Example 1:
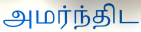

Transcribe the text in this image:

அமர்ந்திட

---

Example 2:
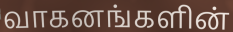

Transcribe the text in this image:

வாகனங்களின்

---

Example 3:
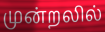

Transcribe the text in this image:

முன்றலில்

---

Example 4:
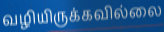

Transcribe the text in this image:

வழியிருக்கவில்லை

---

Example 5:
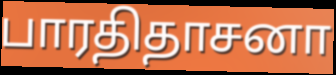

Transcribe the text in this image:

பாரதிதாசனா